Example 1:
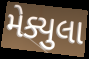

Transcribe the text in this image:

મેક્યુલા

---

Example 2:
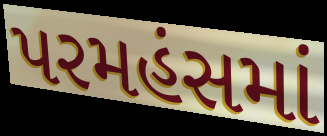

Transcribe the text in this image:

પરમહંસમાં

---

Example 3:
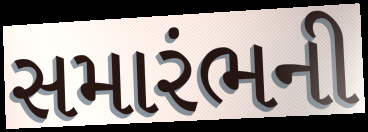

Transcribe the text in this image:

સમારંભની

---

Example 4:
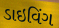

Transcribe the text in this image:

ડાઇવિંગ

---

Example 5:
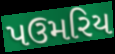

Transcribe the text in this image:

પઉમરિય